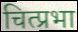
चित्प्रभा